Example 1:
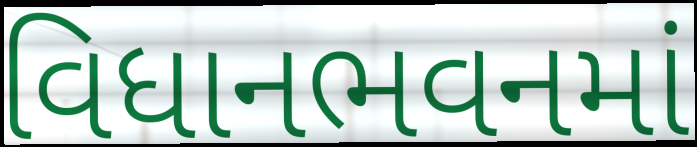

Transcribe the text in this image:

વિધાનભવનમાં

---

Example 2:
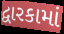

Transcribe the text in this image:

દ્વારકામાં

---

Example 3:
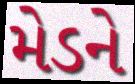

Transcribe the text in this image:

મેડને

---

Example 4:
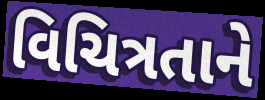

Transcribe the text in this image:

વિચિત્રતાને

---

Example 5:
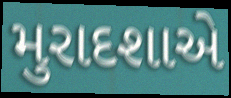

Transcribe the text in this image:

મુરાદશાએ